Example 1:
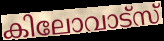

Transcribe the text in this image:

കിലോവാട്സ്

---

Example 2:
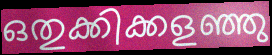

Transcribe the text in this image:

ഒതുക്കിക്കളഞ്ഞു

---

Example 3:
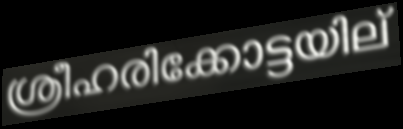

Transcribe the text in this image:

ശ്രീഹരിക്കോട്ടയില്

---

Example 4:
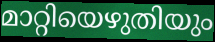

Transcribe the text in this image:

മാറ്റിയെഴുതിയും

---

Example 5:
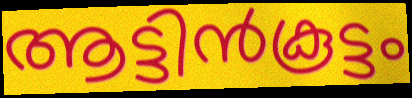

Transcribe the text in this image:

ആട്ടിൻകൂട്ടം